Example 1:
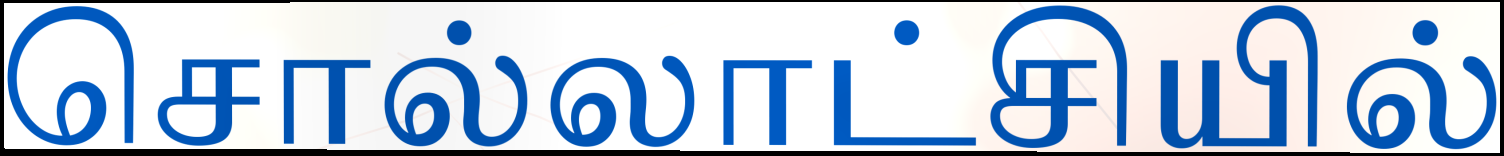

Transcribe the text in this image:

சொல்லாட்சியில்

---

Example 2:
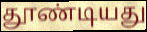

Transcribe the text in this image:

தூண்டியது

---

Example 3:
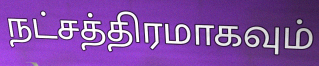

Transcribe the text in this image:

நட்சத்திரமாகவும்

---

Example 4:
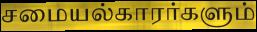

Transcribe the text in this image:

சமையல்காரர்களும்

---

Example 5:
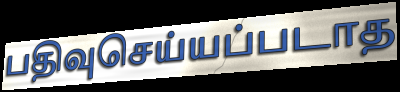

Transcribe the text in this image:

பதிவுசெய்யப்படாத